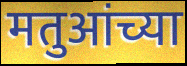
मतुआंच्या